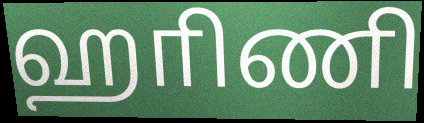
ஹரிணி